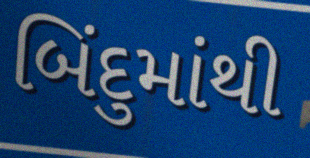
બિંદુમાંથી